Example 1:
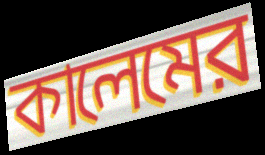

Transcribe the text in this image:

কালেমের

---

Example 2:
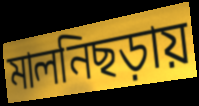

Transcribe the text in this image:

মালনিছড়ায়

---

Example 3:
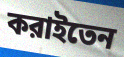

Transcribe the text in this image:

করাইতেন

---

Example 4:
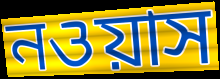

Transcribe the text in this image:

নওয়াস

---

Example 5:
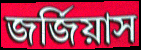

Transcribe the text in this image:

জর্জিয়াস